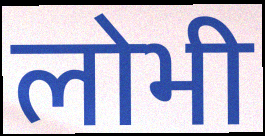
लोभी